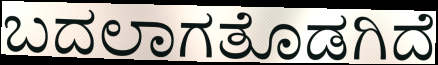
ಬದಲಾಗತೊಡಗಿದೆ